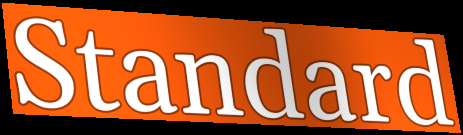
Standard